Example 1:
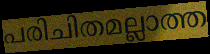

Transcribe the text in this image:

പരിചിതമല്ലാത്ത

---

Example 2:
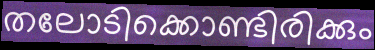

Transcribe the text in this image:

തലോടിക്കൊണ്ടിരിക്കും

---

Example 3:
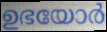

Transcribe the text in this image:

ഉഭയോർ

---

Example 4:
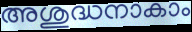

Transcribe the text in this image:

അശുദ്ധനാകാം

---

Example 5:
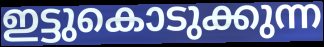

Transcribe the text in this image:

ഇട്ടുകൊടുക്കുന്ന